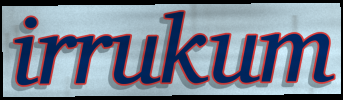
irrukum